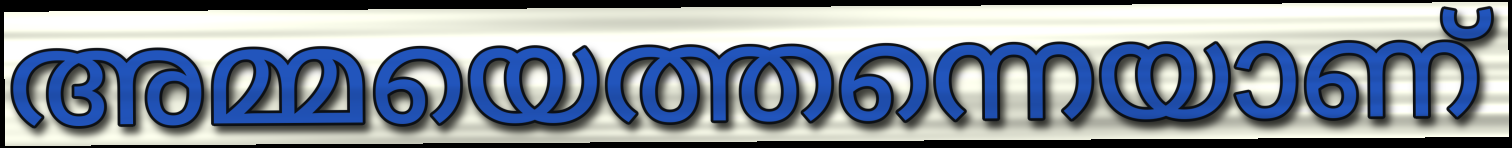
അമ്മയെത്തന്നെയാണ്